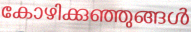
കോഴിക്കുഞ്ഞുങ്ങൾ